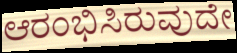
ಆರಂಭಿಸಿರುವುದೇ